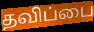
தவிப்பை